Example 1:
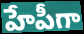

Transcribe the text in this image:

హేపీగా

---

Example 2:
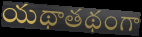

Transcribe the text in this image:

యథాతథంగా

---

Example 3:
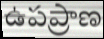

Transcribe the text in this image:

ఉపప్రాణ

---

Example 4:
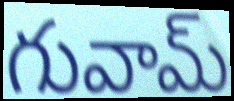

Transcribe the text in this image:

గువామ్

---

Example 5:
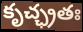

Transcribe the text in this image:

కృచ్ఛ్రతః